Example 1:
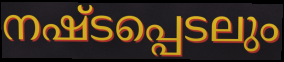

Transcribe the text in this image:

നഷ്ടപ്പെടലും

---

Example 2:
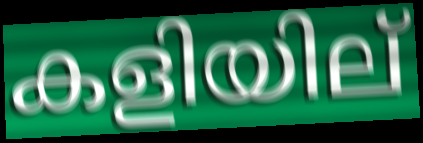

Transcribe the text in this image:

കളിയില്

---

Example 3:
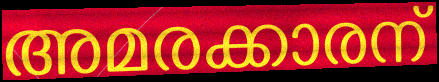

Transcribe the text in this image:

അമരക്കാരന്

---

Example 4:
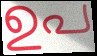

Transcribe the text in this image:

ഉപ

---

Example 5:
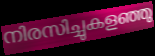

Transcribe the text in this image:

നിരസിച്ചുകളഞ്ഞു